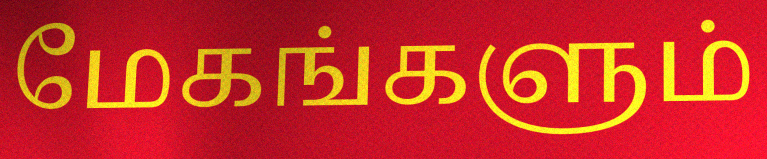
மேகங்களும்